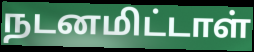
நடனமிட்டாள்